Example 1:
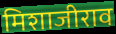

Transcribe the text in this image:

मिशाजीराव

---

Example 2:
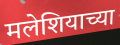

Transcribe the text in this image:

मलेशियाच्या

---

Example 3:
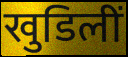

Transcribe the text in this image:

खुडिलीं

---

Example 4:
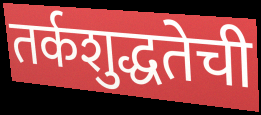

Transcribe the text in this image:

तर्कशुद्धतेची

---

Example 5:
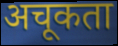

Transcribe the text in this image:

अचूकता